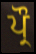
ਪ੍ਰੌ